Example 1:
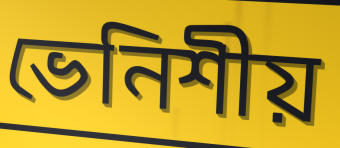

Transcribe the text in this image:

ভেনিশীয়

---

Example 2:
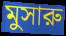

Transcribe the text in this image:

মুসারু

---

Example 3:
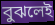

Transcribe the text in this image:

বুঝলেই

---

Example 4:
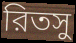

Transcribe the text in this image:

রিতসু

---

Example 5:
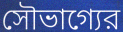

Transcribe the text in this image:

সৌভাগ্যের